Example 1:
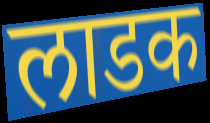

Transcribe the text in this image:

लाडक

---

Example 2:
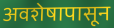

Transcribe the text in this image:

अवशेषापासून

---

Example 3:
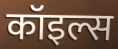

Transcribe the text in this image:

कॉइल्स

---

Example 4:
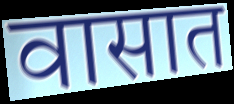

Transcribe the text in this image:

वासात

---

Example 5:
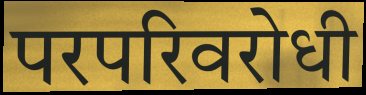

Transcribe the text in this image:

परपरिवरोधी